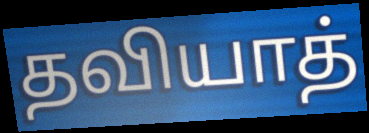
தவியாத்